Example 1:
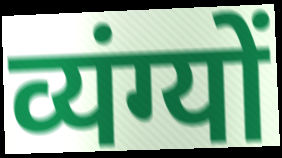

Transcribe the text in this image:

व्यंग्यों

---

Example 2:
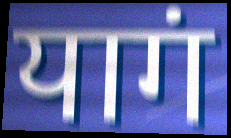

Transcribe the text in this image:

यागं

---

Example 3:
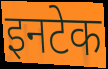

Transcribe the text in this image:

इनटेक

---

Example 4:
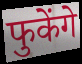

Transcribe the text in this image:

फुकेंगे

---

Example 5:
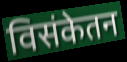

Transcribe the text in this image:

विसंकेतन